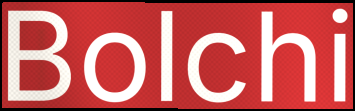
Bolchi